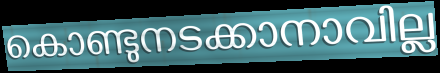
കൊണ്ടുനടക്കാനാവില്ല